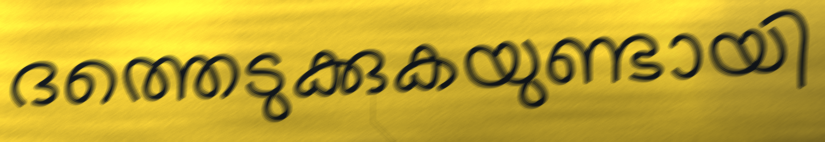
ദത്തെടുക്കുകയുണ്ടായി